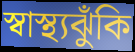
স্বাস্থ্যঝুঁকি